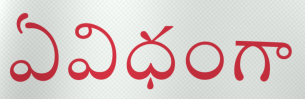
ఏవిధంగా